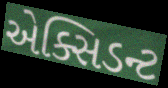
એક્સિડન્ટ